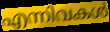
എന്നിവകൾ